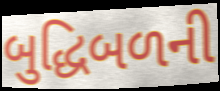
બુદ્ધિબળની